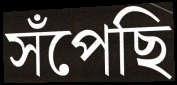
সঁপেছি